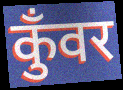
कुँवर